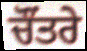
ਚੌਂਤਰੇ